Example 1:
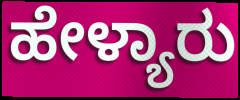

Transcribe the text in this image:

ಹೇಳ್ಯಾರು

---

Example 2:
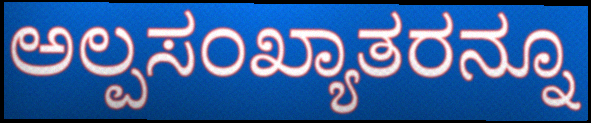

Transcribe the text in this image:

ಅಲ್ಪಸಂಖ್ಯಾತರನ್ನೂ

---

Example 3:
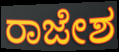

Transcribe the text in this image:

ರಾಜೇಶ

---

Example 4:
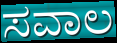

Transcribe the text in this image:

ಸವಾಲ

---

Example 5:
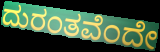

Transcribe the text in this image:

ದುರಂತವೆಂದೇ